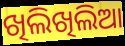
ଖିଲିଖିଲିଆ